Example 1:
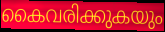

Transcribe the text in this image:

കൈവരിക്കുകയും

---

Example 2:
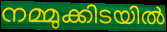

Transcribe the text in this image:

നമ്മുക്കിടയിൽ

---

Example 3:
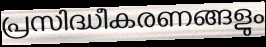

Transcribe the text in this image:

പ്രസിദ്ധീകരണങ്ങളും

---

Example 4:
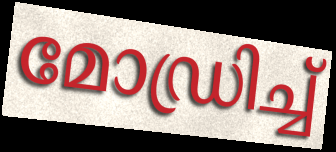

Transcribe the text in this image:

മോഡ്രിച്ച്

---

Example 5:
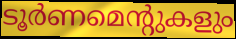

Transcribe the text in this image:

ടൂർണമെന്റുകളും